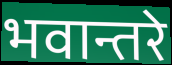
भवान्तरे